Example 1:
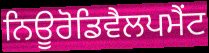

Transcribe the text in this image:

ਨਿਊਰੋਡਿਵੈਲਪਮੈਂਟ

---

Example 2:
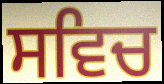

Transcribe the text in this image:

ਸਵਿਚ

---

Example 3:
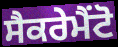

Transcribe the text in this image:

ਸੈਕਰੇਮੈਂਟੋ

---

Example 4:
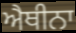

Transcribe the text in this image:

ਐਥੀਨਾ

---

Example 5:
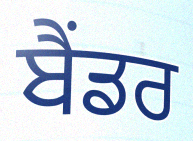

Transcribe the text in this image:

ਬੈਂਡਰ